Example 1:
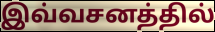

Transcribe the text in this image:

இவ்வசனத்தில்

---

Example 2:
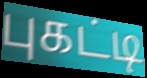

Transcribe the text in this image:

புகட்டி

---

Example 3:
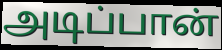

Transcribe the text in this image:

அடிப்பான்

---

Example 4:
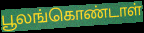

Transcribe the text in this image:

பூலங்கொண்டாள்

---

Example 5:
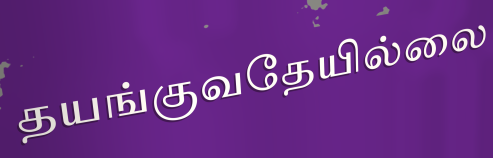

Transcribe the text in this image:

தயங்குவதேயில்லை